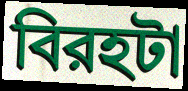
বিরহটা